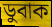
ডুবাক